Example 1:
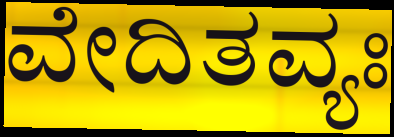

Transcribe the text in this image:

ವೇದಿತವ್ಯಃ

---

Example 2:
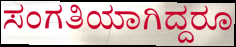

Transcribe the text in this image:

ಸಂಗತಿಯಾಗಿದ್ದರೂ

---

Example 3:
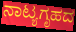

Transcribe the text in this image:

ನಾಟ್ಯಗೃಹದ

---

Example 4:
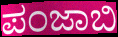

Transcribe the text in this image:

ಪಂಜಾಬಿ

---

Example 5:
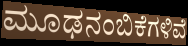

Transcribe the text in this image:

ಮೂಢನಂಬಿಕೆಗಳಿವೆ